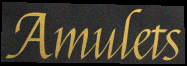
Amulets